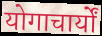
योगाचार्यों